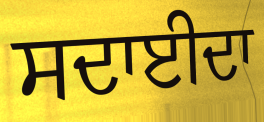
ਸਦਾਈਦਾ